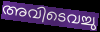
അവിടെവച്ചു